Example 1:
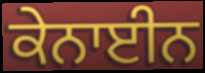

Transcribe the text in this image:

ਕੇਨਾਈਨ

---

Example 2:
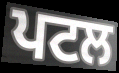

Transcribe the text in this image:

ਪਟਲ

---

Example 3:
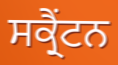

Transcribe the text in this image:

ਸਕ੍ਰੈਂਟਨ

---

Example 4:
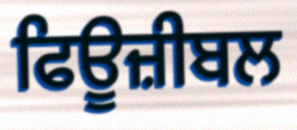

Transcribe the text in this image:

ਫਿਊਜ਼ੀਬਲ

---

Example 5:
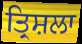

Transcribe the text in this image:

ਤ੍ਰਿਸ਼ਲਾ